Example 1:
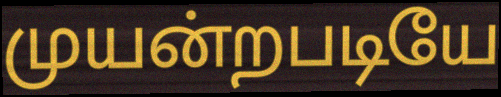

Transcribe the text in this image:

முயன்றபடியே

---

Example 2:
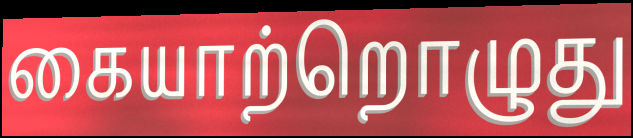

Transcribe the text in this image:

கையாற்றொழுது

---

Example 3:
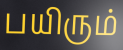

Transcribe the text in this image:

பயிரும்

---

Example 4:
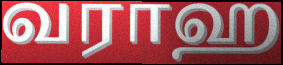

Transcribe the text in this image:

வராஹ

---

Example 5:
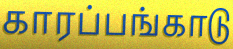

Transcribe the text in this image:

காரப்பங்காடு